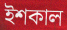
ইশকাল